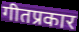
गीतप्रकार